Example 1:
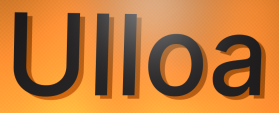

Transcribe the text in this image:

Ulloa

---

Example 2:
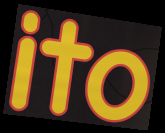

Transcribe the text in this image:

ito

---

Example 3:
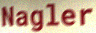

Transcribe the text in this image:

Nagler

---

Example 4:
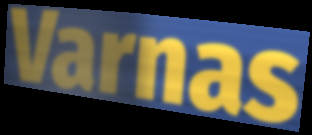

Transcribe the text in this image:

Varnas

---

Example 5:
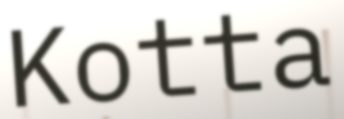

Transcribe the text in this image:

Kotta